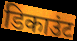
डिकाउंट